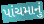
પાંચમાનું